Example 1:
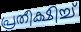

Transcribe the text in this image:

പ്രതീക്ഷിച്ച്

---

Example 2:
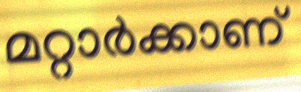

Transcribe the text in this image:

മറ്റാർക്കാണ്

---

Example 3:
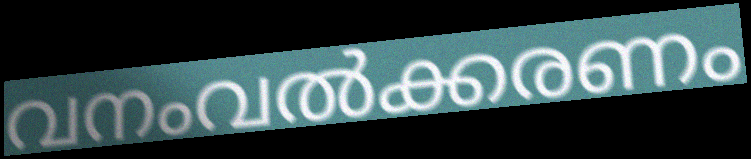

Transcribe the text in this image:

വനംവൽക്കരണം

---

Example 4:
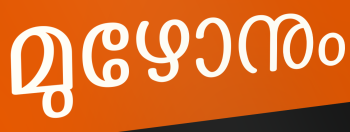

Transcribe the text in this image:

മുഴോനും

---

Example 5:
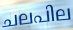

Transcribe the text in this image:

ചലപില